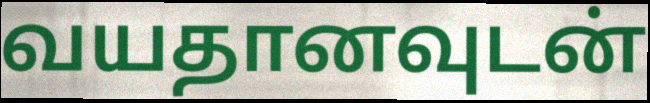
வயதானவுடன்